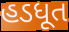
હડધૂત